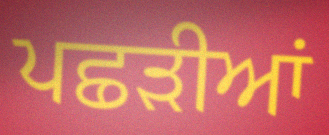
ਪਛੜੀਆਂ